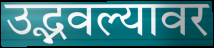
उद्भवल्यावर